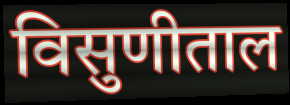
विसुणीताल